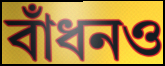
বাঁধনও